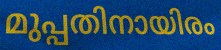
മുപ്പതിനായിരം